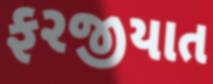
ફરજીયાત